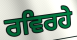
ਰਵਿਰਹੇ